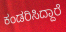
ಕಂಡರಿಸಿದ್ದಾರೆ